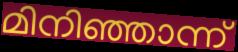
മിനിഞ്ഞാന്ന്